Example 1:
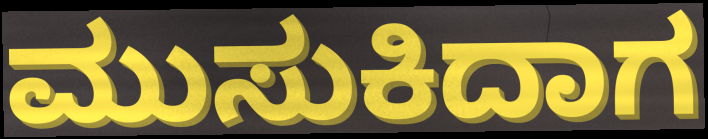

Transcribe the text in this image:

ಮುಸುಕಿದಾಗ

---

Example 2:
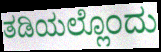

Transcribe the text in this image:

ತಡಿಯಲ್ಲೊಂದು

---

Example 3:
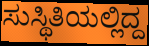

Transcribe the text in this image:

ಸುಸ್ಥಿತಿಯಲ್ಲಿದ್ದ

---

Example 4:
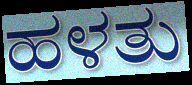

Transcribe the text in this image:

ಹಳತು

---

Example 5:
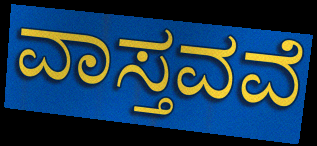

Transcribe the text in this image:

ವಾಸ್ತವವೆ